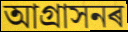
আগ্ৰাসনৰ